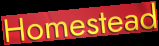
Homestead